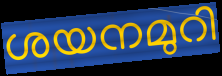
ശയനമുറി